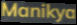
Manikya